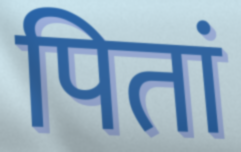
पितां